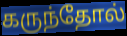
கருந்தோல்